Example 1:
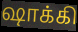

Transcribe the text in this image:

ஷாக்கி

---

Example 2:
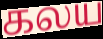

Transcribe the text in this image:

கலய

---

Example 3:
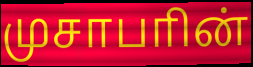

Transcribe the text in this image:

முசாபரின்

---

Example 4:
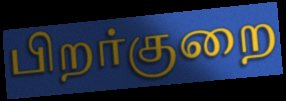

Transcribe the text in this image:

பிறர்குறை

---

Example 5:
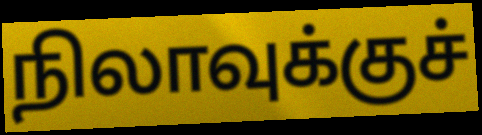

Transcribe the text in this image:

நிலாவுக்குச்